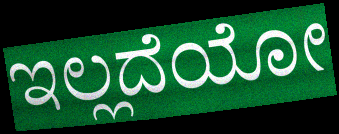
ಇಲ್ಲದೆಯೋ